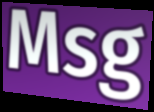
Msg